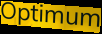
Optimum